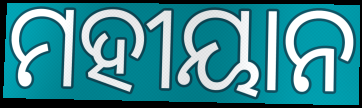
ମହୀୟାନ